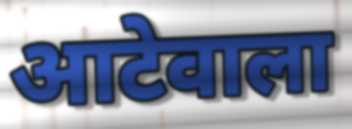
आटेवाला